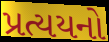
પ્રત્યયનો